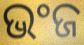
ଭଂଜ